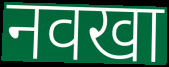
नवखा